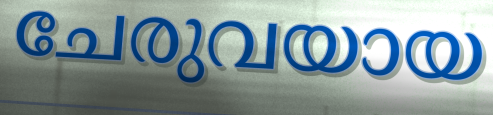
ചേരുവയായ